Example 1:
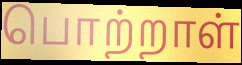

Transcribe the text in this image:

பொற்றாள்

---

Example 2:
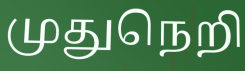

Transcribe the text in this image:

முதுநெறி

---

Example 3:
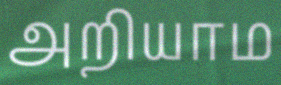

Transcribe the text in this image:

அறியாம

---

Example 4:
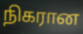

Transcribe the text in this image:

நிகரான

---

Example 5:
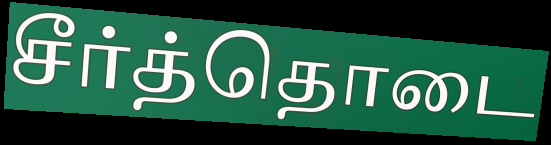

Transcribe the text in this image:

சீர்த்தொடை